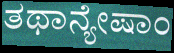
ತಥಾನ್ಯೇಷಾಂ